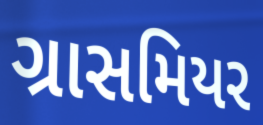
ગ્રાસમિયર